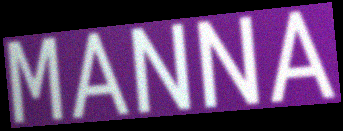
MANNA